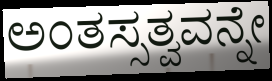
ಅಂತಸ್ಸತ್ವವನ್ನೇ